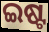
ଇଷ୍ଟ